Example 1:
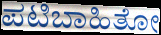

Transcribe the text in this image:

ಪಟಿಬಾಹಿತೋ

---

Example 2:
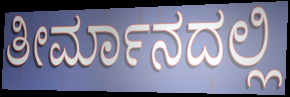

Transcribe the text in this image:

ತೀರ್ಮಾನದಲ್ಲಿ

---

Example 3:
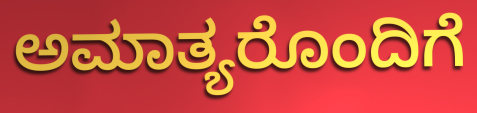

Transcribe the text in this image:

ಅಮಾತ್ಯರೊಂದಿಗೆ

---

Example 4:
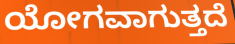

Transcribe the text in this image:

ಯೋಗವಾಗುತ್ತದೆ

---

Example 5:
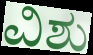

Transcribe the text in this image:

ವಿಶು